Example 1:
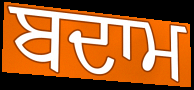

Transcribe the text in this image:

ਬਦਾਮ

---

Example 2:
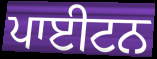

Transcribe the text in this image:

ਪਾਈਟਨ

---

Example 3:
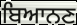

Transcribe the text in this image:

ਬਿਆਨਣ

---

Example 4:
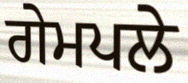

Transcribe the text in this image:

ਗੇਮਪਲੇ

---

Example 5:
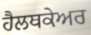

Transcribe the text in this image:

ਹੈਲਥਕੇਅਰ